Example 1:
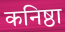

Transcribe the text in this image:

कनिष्ठा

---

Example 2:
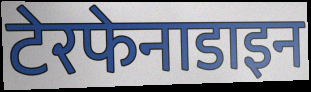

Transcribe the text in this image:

टेरफेनाडाइन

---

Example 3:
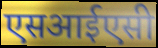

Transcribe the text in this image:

एसआईएसी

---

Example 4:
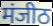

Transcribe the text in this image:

मंजीठ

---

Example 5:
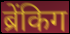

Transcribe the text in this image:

ब्रेंकिग